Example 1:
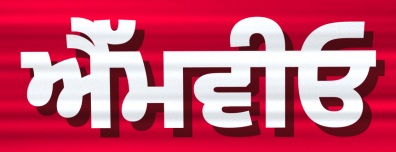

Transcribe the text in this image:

ਐੱਮਵੀਓ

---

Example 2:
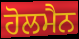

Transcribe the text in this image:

ਹੋਲਮੈਨ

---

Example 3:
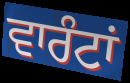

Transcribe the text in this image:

ਵਾਰੰਟਾਂ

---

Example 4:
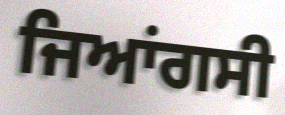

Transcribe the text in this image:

ਜਿਆਂਗਸੀ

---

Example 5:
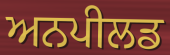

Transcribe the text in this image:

ਅਨਪੀਲਡ